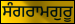
ਸੰਗਰਾਮਗੁਰੂ